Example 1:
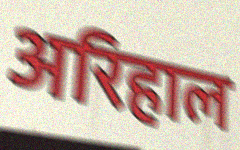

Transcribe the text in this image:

अरिहाल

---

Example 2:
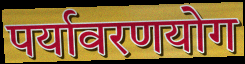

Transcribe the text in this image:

पर्यावरणयोग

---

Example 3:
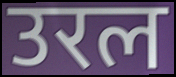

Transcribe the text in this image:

उरल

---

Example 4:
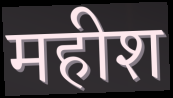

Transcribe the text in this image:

महीश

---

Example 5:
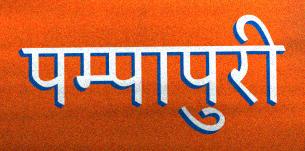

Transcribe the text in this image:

पम्पापुरी